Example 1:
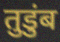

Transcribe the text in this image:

तुडुंब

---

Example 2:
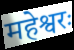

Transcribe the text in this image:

महेश्वरः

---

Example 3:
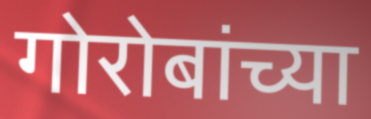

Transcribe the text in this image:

गोरोबांच्या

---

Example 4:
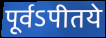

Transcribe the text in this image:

पूर्वऽपीतये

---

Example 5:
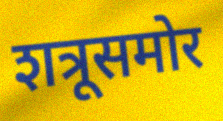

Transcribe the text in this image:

शत्रूसमोर